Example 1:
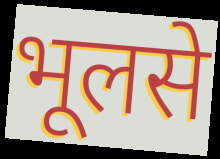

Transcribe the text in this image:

भूलसे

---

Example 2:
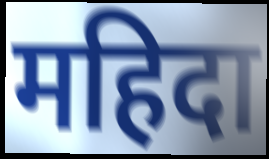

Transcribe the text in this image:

महिदा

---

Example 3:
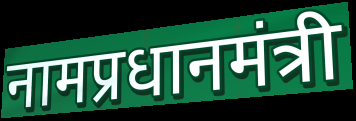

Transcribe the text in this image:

नामप्रधानमंत्री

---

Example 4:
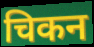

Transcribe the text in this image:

चिकन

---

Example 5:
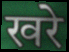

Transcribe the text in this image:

खरे